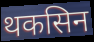
थकसिन